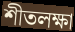
শীতলক্ষা